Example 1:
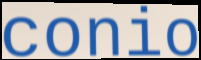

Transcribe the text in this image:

conio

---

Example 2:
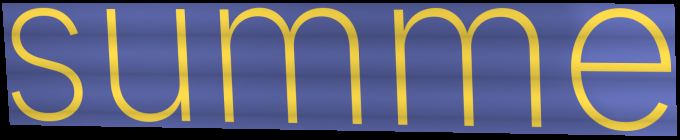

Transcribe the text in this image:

summe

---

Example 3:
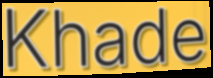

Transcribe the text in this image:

Khade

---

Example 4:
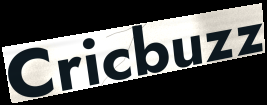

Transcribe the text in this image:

Cricbuzz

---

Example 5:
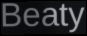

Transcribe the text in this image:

Beaty